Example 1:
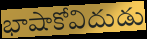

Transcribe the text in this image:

భాషాకోవిదుడు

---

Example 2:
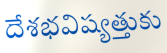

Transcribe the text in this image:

దేశభవిష్యత్తుకు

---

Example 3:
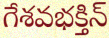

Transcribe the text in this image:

గేశవభక్తిన్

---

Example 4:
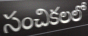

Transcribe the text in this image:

సంచికలలో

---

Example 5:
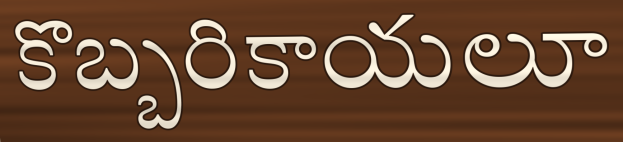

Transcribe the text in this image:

కొబ్బరికాయలూ